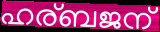
ഹര്ബജന്